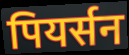
पियर्सन